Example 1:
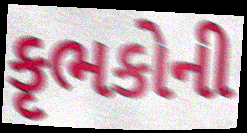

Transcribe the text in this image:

કૃભકોની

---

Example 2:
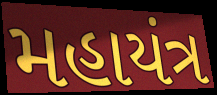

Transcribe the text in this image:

મહાયંત્ર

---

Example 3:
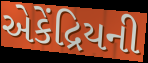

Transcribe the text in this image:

એકેંદ્રિયની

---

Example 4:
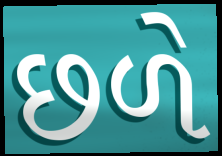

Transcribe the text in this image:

છળે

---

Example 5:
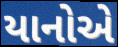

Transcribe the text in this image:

યાનોએ